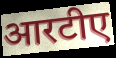
आरटीए